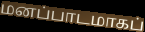
மனப்பாடமாகப்